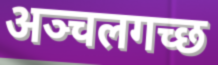
अञ्चलगच्छ